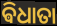
ଵିଧାତା